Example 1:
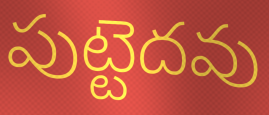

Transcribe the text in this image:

పుట్టెదవు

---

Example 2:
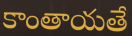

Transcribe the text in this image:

కాంతాయతే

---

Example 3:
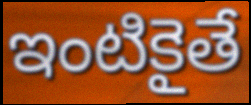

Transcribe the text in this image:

ఇంటికైతే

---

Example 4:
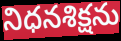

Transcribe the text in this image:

నిధనశిక్షను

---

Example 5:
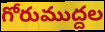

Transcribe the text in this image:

గోరుముద్దల